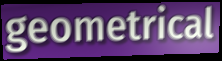
geometrical